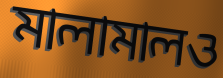
মালামালও